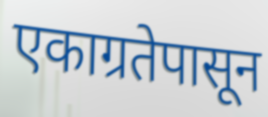
एकाग्रतेपासून